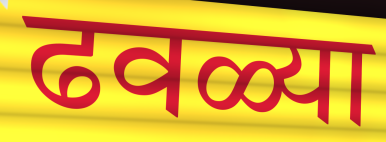
ढवळ्या